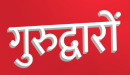
गुरुद्वारों